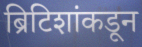
ब्रिटिशांकडून